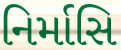
નિર્માસિ